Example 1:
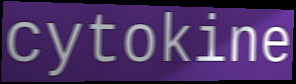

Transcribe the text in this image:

cytokine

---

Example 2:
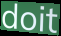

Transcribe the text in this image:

doit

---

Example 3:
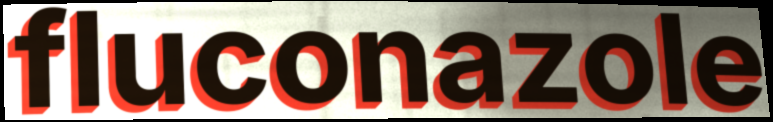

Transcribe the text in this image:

fluconazole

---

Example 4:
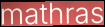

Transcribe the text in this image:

mathras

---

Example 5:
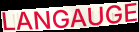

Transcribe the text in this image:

LANGAUGE